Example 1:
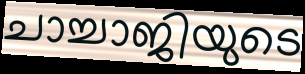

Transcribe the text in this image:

ചാച്ചാജിയുടെ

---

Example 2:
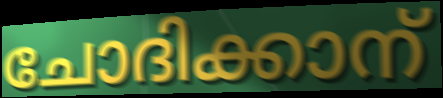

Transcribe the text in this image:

ചോദിക്കാന്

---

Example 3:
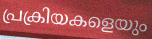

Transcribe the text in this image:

പ്രക്രിയകളെയും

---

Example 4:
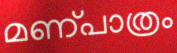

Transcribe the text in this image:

മണ്പാത്രം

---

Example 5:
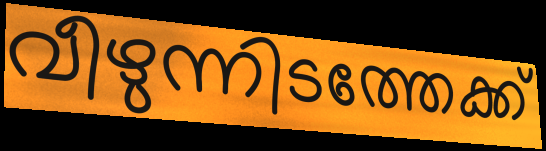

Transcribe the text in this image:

വീഴുന്നിടത്തേക്ക്